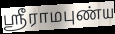
ஸ்ரீராமபுண்ய